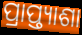
ପ୍ରାପ୍ତ୍ୟାଶା